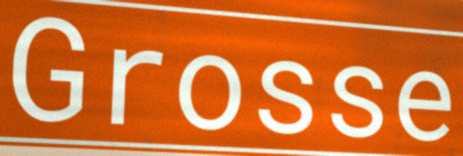
Grosse